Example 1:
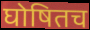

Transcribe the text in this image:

घोषितच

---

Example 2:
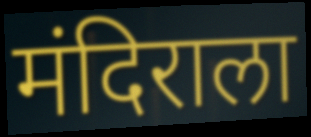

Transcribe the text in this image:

मंदिराला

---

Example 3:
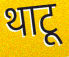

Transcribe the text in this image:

थाटू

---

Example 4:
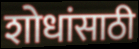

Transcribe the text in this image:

शोधांसाठी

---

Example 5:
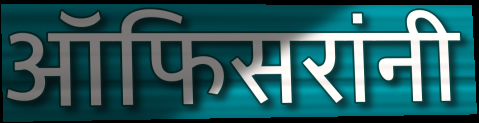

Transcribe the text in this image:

ऑफिसरांनी